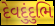
દેવદુંદુભિ